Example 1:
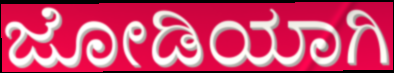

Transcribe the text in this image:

ಜೋಡಿಯಾಗಿ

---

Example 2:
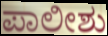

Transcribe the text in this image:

ಪಾಲೀಶು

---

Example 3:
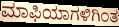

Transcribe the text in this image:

ಮಾಫಿಯಾಗಳಿಗಿಂತ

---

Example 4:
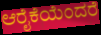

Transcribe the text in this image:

ಆರೈಕೆಯೆಂದರೆ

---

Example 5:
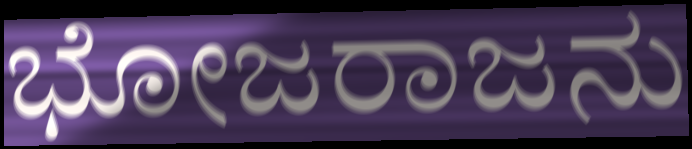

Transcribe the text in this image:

ಭೋಜರಾಜನು